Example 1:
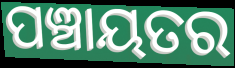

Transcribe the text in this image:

ପଞ୍ଚାୟତର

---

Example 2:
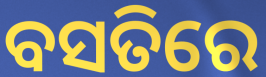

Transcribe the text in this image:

ବସତିରେ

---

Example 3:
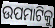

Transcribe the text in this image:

ଉପମାଟିକୁ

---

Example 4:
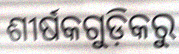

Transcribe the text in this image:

ଶୀର୍ଷକଗୁଡ଼ିକରୁ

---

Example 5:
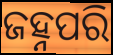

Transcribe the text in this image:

ଜହ୍ନପରି